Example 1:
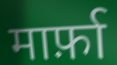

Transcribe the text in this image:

मार्फ़ा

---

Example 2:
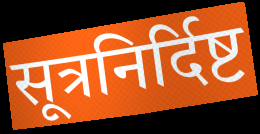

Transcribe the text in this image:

सूत्रनिर्दिष्ट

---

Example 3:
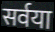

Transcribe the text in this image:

सर्वया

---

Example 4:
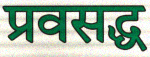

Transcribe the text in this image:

प्रवसद्ध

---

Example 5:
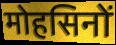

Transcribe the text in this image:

मोहसिनों